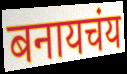
बनायचंय